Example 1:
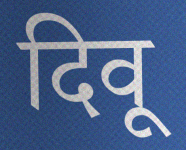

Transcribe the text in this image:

दिवू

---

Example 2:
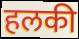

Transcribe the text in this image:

हलकी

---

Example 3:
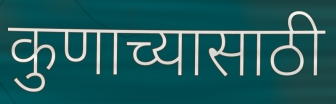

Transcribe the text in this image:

कुणाच्यासाठी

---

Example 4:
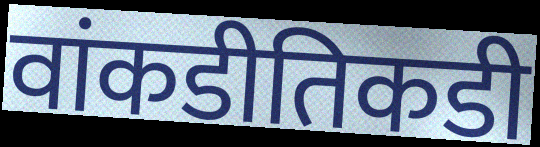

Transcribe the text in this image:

वांकडीतिकडी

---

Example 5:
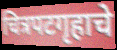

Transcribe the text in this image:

चित्रपटगृहाचे